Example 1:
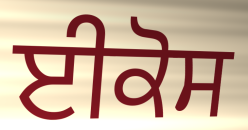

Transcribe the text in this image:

ਈਕੋਸ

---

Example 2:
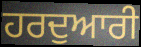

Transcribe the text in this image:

ਹਰਦੁਆਰੀ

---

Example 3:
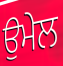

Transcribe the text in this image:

ਉਮੇਲ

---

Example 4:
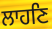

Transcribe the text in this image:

ਲਾਹਣਿ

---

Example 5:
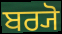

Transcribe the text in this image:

ਬਰ੍ਯੋ